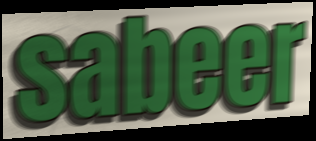
sabeer